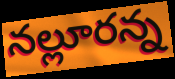
నల్లూరన్న